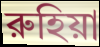
রুহিয়া